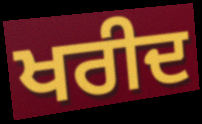
ਖਰੀਦ